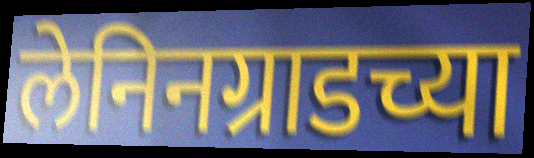
लेनिनग्राडच्या